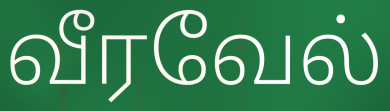
வீரவேல்